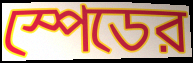
স্পেডের